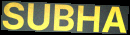
SUBHA